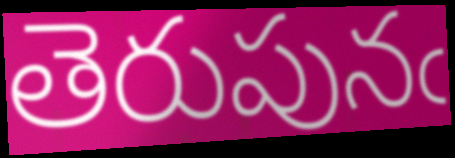
తెరుపునఁ